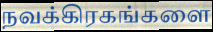
நவக்கிரகங்களை